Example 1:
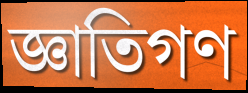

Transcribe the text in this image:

জ্ঞাতিগণ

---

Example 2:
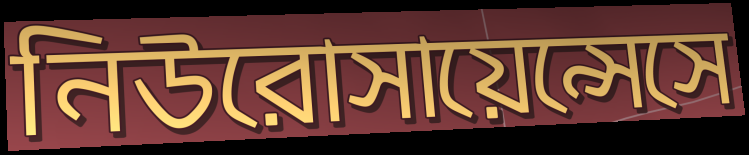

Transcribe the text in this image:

নিউরোসায়েন্সেসে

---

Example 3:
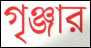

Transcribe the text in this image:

গৃঞ্জার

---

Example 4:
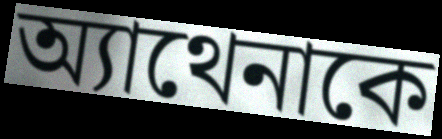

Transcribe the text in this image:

অ্যাথেনাকে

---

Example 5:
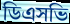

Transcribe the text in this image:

ডিএসভি